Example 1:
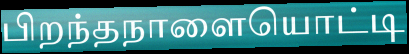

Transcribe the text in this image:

பிறந்தநாளையொட்டி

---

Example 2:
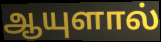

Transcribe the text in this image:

ஆயுளால்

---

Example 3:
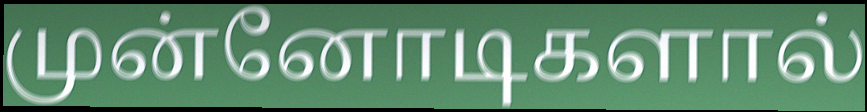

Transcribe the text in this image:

முன்னோடிகளால்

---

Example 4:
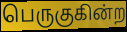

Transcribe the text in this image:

பெருகுகின்ற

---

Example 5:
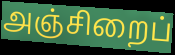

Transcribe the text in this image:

அஞ்சிறைப்